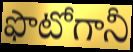
ఫొటోగానీ